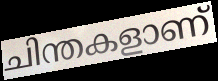
ചിന്തകളാണ്